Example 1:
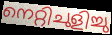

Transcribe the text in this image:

നെറ്റിചുളിച്ചു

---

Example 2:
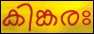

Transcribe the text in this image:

കിങ്കരഃ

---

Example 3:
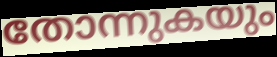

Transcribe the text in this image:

തോന്നുകയും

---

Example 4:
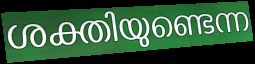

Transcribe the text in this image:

ശക്തിയുണ്ടെന്ന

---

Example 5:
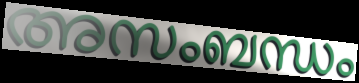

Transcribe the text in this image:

അസംബന്ധം